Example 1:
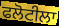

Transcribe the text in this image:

ਫਲੋਟੀਲਾ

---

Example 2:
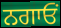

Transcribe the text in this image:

ਨਗਾਓਂ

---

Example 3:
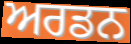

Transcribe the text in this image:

ਅਰਡਨ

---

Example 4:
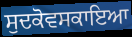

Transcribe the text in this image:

ਸੁਦਕੋਵਸਕਾਇਆ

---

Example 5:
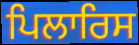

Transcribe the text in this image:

ਪਿਲਾਰਿਸ